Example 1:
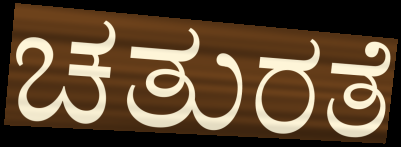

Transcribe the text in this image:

ಚತುರತೆ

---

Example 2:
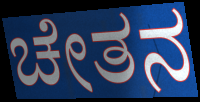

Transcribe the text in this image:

ಚೇತನ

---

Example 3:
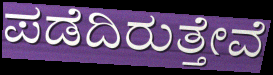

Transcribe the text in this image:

ಪಡೆದಿರುತ್ತೇವೆ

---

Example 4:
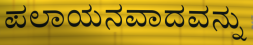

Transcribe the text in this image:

ಪಲಾಯನವಾದವನ್ನು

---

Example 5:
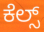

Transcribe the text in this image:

ಕೆಲ್ಸ್